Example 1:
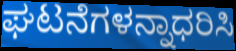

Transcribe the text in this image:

ಘಟನೆಗಳನ್ನಾಧರಿಸಿ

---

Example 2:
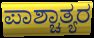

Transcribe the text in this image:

ಪಾಶ್ಚಾತ್ಯರ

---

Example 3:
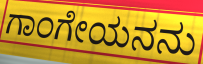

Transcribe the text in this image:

ಗಾಂಗೇಯನನು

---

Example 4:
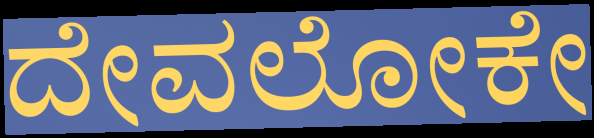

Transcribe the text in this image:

ದೇವಲೋಕೇ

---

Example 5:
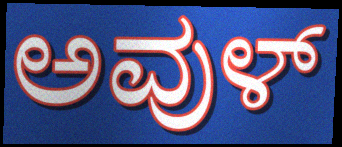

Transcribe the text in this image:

ಅವುಳ್